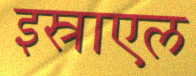
इस्राएल